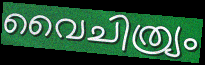
വൈചിത്ര്യം